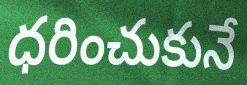
ధరించుకునే